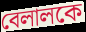
বেলালকে